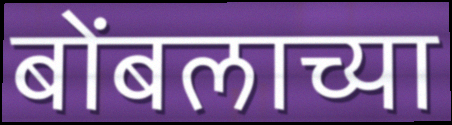
बोंबलाच्या